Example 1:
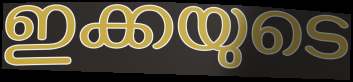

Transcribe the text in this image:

ഇക്കയുടെ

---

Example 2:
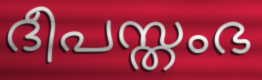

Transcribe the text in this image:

ദീപസ്തംഭ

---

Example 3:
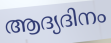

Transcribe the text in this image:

ആദ്യദിനം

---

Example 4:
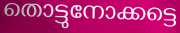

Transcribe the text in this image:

തൊട്ടുനോക്കട്ടെ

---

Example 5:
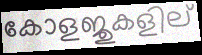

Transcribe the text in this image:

കോളജുകളില്